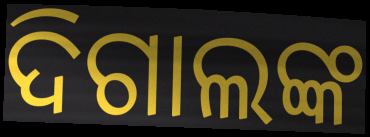
ଦିଗାଲଙ୍କ